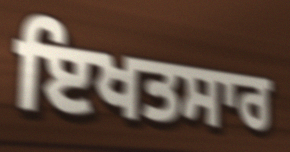
ਇਖਤਸਾਰ